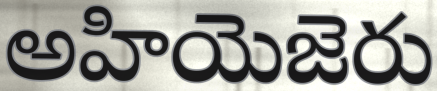
అహియెజెరు